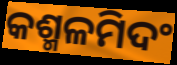
କଶ୍ମଳମିଦଂ